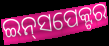
ଇନ୍‌ସପେକ୍ଟର